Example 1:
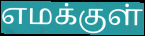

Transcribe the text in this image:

எமக்குள்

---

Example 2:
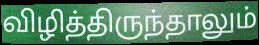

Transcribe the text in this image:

விழித்திருந்தாலும்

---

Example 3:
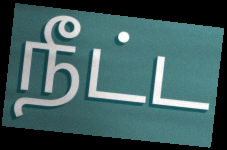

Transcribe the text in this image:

நீட்ட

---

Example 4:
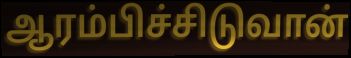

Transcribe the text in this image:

ஆரம்பிச்சிடுவான்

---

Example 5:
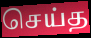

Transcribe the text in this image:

செய்த